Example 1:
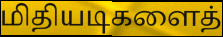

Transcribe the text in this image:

மிதியடிகளைத்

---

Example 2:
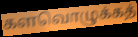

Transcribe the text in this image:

களவொழுக்கத்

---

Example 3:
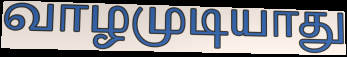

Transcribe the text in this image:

வாழமுடியாது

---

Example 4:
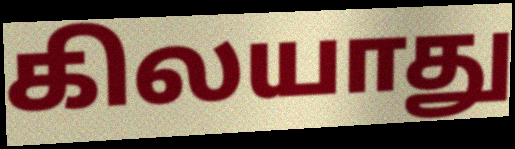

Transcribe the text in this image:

கிலயாது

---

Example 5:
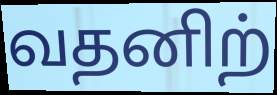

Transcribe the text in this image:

வதனிற்